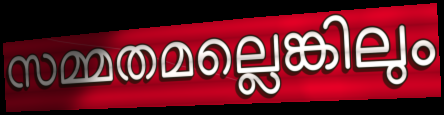
സമ്മതമല്ലെങ്കിലും